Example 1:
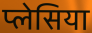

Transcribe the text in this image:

प्लेसिया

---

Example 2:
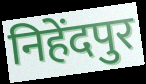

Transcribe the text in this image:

निहेंदपुर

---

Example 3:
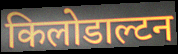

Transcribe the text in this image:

किलोडाल्टन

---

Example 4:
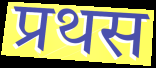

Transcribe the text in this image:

प्रथस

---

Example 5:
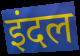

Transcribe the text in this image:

इंदल